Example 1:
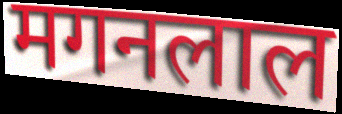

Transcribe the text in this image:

मगनलाल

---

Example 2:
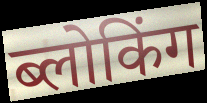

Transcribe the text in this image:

ब्लोकिंग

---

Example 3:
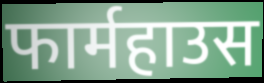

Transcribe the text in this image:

फार्महाउस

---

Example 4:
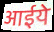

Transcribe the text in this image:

आईये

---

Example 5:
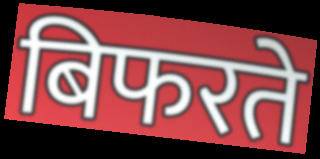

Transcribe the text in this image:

बिफरते